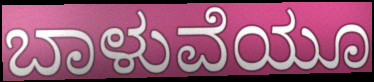
ಬಾಳುವೆಯೂ